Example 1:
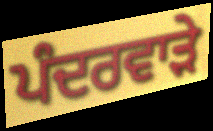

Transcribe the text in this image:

ਪੰਦਰਵਾੜੇ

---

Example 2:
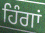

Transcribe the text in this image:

ਹਿੰਗਾਂ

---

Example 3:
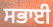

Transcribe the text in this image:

ਸਭਾਈ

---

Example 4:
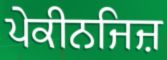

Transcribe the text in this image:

ਪੇਕੀਨਜਿਜ਼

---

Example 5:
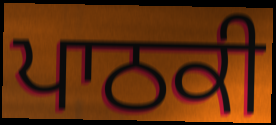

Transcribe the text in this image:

ਪਾਠਕੀ